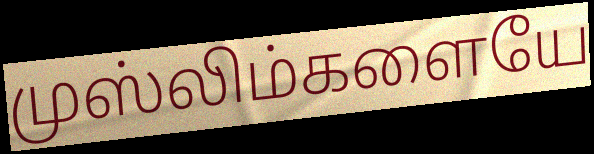
முஸ்லிம்களையே